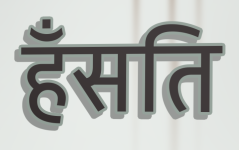
हँसति